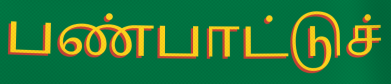
பண்பாட்டுச்